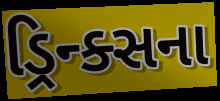
ડ્રિન્ક્સના